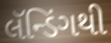
લૅન્ડિંગથી